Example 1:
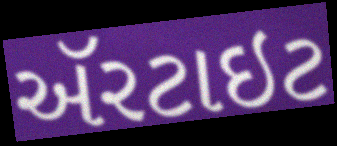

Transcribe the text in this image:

ઍરટાઇટ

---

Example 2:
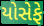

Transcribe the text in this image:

યોસેફે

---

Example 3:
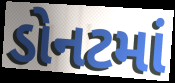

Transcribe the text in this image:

ડોનટમાં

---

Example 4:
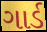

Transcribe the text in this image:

ગાર્ડ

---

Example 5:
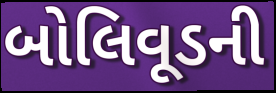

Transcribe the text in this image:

બોલિવૂડની